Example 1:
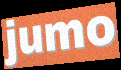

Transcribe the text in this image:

jumo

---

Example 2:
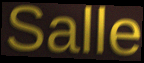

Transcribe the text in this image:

Salle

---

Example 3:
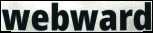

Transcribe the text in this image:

webward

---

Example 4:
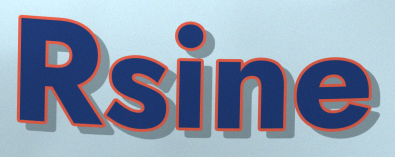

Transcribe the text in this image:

Rsine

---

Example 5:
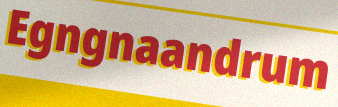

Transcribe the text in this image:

Egngnaandrum